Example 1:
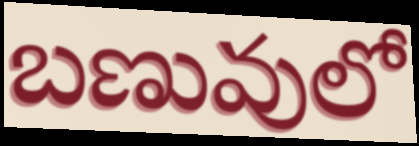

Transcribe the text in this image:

బణువులో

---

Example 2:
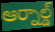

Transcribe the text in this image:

ఆర్నాల్డ్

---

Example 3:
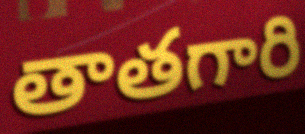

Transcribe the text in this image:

తాతగారి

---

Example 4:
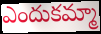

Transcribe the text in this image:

ఎందుకమ్మా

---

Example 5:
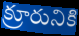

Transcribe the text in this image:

క్రూరునికి